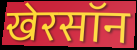
खेरसॉन